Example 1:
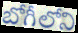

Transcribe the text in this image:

బోగీలోని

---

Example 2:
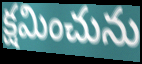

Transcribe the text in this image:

క్షమించును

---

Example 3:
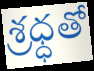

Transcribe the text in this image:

శ్రధ్ధతో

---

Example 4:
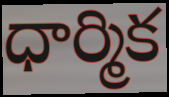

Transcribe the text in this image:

ధార్మిక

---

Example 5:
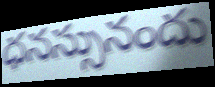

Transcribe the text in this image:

ధనస్సునందు